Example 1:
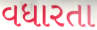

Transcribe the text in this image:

વધારતા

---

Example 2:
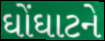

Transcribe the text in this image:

ઘોંઘાટને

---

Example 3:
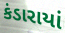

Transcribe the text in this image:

કંડારાયાં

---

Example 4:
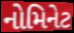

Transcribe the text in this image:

નોમિનેટ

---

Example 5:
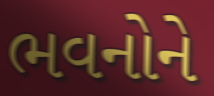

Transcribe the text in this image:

ભવનોને